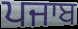
ਪਜਾਬ